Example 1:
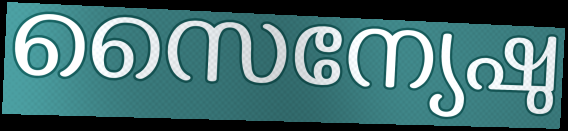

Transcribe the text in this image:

സൈന്യേഷു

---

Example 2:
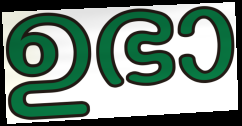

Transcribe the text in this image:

ഉഭാ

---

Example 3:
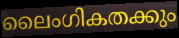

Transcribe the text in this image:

ലൈംഗികതക്കും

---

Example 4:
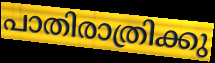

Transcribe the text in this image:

പാതിരാത്രിക്കു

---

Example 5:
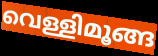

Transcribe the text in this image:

വെള്ളിമൂങ്ങ